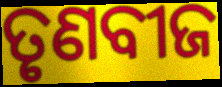
ତୃଣବୀଜ